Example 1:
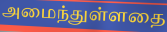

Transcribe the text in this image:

அமைந்துள்ளதை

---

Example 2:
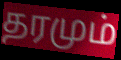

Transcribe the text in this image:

தரமும்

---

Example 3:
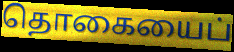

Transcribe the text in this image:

தொகையைப்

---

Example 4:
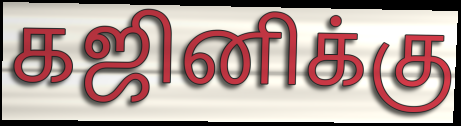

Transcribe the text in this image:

கஜினிக்கு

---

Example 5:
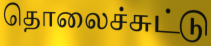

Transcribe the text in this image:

தொலைச்சுட்டு